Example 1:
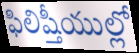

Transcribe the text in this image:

ఫిలిష్తీయుల్లో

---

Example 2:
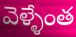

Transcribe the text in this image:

వెళ్ళేంత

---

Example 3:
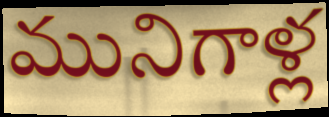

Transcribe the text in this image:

మునిగాళ్ల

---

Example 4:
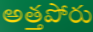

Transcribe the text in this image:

అత్తపోరు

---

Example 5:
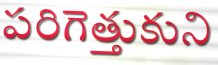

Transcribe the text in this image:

పరిగెత్తుకుని